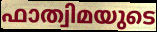
ഫാത്വിമയുടെ